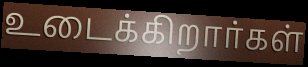
உடைக்கிறார்கள்